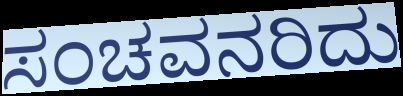
ಸಂಚವನರಿದು